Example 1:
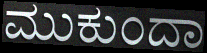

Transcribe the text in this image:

ಮುಕುಂದಾ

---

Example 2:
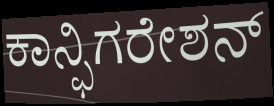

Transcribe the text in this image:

ಕಾನ್ಫಿಗರೇಶನ್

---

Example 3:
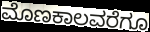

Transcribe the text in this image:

ಮೊಣಕಾಲವರೆಗೂ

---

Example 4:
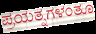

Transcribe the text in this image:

ಪ್ರಯತ್ನಗಳಂತೂ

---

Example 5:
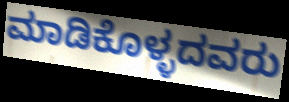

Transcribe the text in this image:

ಮಾಡಿಕೊಳ್ಳದವರು